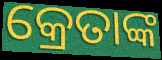
କ୍ରେତାଙ୍କ